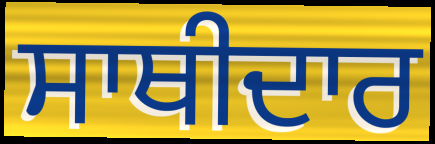
ਸਾਥੀਦਾਰ